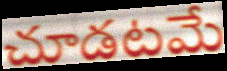
చూడటమే